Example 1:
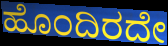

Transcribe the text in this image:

ಹೊಂದಿರದೇ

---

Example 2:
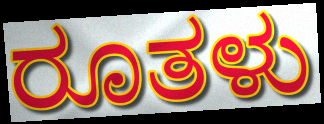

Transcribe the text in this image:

ರೂತಳು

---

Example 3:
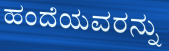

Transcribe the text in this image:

ಹಂದೆಯವರನ್ನು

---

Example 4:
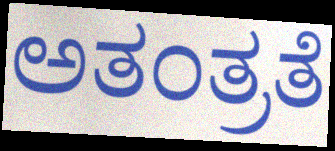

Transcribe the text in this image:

ಅತಂತ್ರತೆ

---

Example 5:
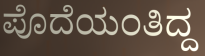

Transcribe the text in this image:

ಪೊದೆಯಂತಿದ್ದ